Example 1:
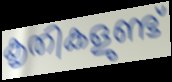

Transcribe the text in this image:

കൃതികളുണ്ട്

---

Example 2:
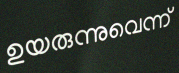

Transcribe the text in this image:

ഉയരുന്നുവെന്ന്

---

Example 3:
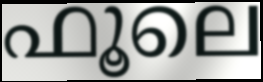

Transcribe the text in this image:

ഫൂലെ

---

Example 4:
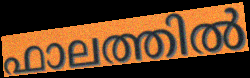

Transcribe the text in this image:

ഫാലത്തിൽ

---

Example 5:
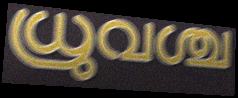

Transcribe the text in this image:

ധ്രുവശ്ച